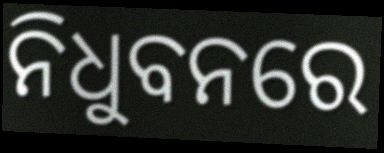
ନିଧୁବନରେ